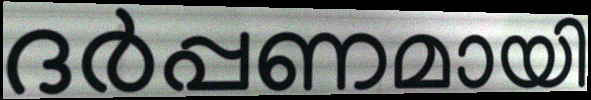
ദർപ്പണമായി